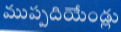
ముప్పదియేండ్లు